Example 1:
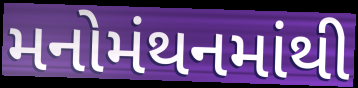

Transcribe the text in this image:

મનોમંથનમાંથી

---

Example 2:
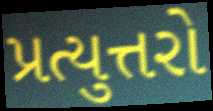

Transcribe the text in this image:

પ્રત્યુત્તરો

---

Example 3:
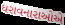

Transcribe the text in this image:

ધરાવનારાઓએ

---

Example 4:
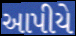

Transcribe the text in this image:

આપીયે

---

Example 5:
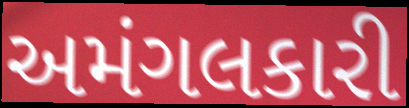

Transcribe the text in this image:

અમંગલકારી